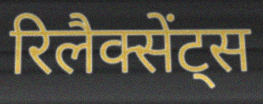
रिलैक्सेंट्स